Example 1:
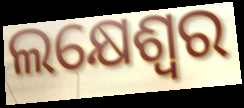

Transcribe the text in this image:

ଲକ୍ଷେଶ୍ୱର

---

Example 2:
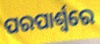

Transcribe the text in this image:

ପରପାର୍ଶ୍ୱରେ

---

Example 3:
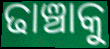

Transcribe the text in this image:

ଢାଞ୍ଚାକୁ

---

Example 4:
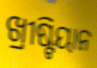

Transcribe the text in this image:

ଖ୍ରୀଷ୍ଟିୟାନ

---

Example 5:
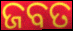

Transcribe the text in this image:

ଜବତ